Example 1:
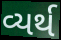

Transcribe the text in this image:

વ્યર્થ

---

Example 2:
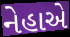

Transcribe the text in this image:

નેહાએ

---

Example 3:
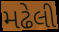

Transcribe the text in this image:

મઢેલી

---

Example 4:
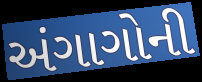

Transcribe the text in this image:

અંગાગોની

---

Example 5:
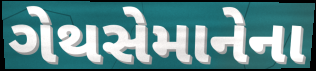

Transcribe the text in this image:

ગેથસેમાનેના